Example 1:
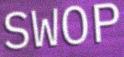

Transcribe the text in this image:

SWOP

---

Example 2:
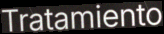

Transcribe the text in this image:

Tratamiento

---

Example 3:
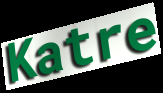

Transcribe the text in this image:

Katre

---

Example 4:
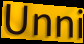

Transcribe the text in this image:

Unni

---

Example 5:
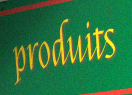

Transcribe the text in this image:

produits